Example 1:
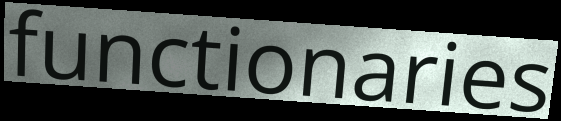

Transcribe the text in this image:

functionaries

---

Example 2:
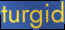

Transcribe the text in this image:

turgid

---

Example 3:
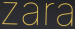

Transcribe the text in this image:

zara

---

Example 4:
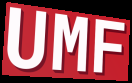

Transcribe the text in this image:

UMF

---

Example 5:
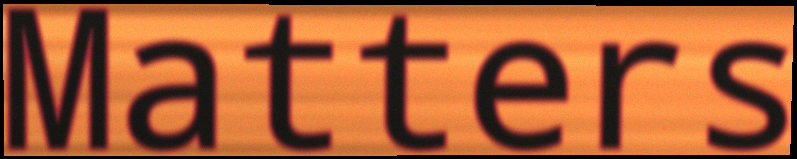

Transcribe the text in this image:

Matters